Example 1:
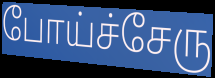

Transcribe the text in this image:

போய்ச்சேரு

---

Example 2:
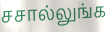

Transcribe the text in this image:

சசால்லுங்க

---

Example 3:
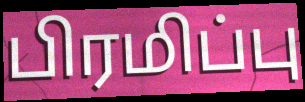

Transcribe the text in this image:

பிரமிப்பு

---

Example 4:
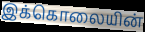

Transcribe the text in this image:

இக்கொலையின்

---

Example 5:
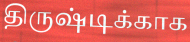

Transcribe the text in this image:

திருஷ்டிக்காக